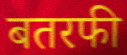
बतरफी